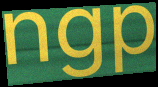
ngp